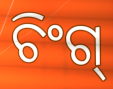
ଚିଂଗ୍